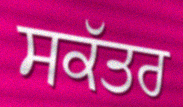
ਸਕੱਤਰ